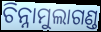
ଚିନ୍ନାମୁଲାଗଣ୍ଡ